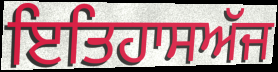
ਇਤਿਹਾਸਅੱਜ